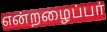
என்றழைப்பர்